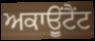
ਅਕਾਉੂਂਟੈਂਟ